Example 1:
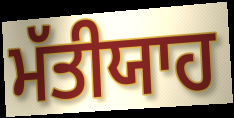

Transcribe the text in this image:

ਮੱਤੀਯਾਹ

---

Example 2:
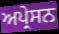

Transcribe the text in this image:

ਅਪ੍ਰੇਸਨ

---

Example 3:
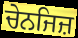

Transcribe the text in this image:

ਚੇਨਜਿਜ਼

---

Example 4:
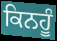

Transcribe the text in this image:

ਕਿਨਹੂੰ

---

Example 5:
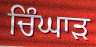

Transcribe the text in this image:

ਚਿੰਘਾੜ